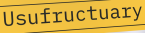
Usufructuary